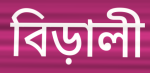
বিড়ালী